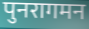
पुनरागमन